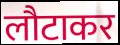
लौटाकर